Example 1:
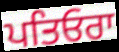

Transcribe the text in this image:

ਪਤਿਓਰਾ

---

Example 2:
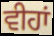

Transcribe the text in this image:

ਵੀਹਾਂ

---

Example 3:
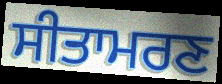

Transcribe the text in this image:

ਸੀਤਾਮਰਣ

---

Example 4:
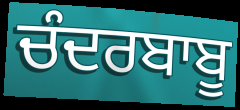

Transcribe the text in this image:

ਚੰਦਰਬਾਬੂ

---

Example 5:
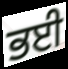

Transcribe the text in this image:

ਭਈ